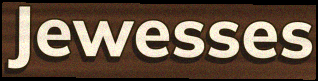
Jewesses